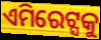
ଏମିରେଟ୍ସକୁ